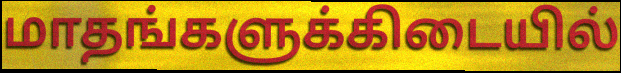
மாதங்களுக்கிடையில்